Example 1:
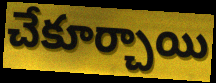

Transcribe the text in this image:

చేకూర్చాయి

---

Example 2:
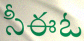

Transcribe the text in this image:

సీఈఓ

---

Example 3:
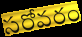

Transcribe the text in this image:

సరోవరం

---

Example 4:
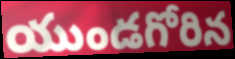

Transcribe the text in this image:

యుండగోరిన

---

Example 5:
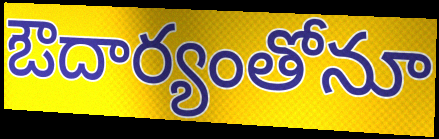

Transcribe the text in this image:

ఔదార్యంతోనూ